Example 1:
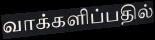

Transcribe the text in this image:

வாக்களிப்பதில்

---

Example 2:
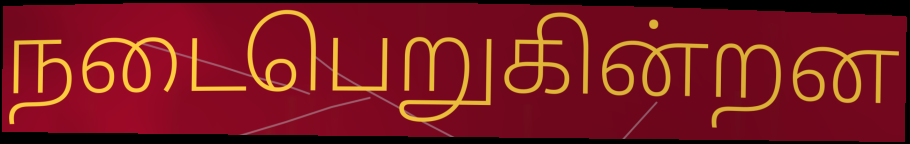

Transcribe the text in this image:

நடைபெறுகின்றன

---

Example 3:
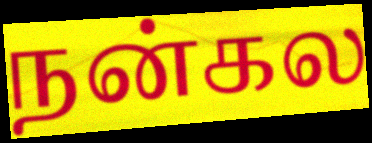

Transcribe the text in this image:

நன்கல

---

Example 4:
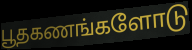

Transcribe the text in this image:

பூதகணங்களோடு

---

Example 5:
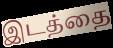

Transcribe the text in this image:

இடத்தை